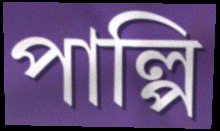
পাল্পি